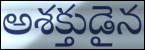
అశక్తుడైన